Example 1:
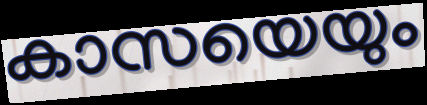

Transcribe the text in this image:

കാസയെയും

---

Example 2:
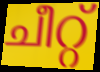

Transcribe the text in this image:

ചീറ്റ്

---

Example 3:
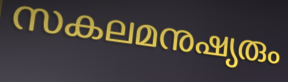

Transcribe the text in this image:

സകലമനുഷ്യരും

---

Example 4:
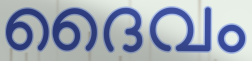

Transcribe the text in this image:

ദൈവം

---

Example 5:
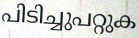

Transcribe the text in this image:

പിടിച്ചുപറ്റുക